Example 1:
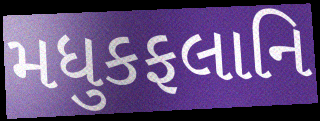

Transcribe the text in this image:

મધુકફલાનિ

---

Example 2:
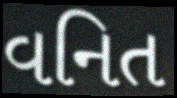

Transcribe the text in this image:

વનિત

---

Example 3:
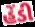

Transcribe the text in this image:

હેંડી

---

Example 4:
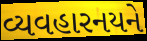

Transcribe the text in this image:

વ્યવહારનયને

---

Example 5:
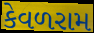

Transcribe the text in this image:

કેવળરામ